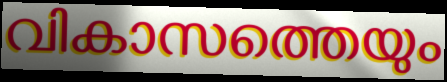
വികാസത്തെയും